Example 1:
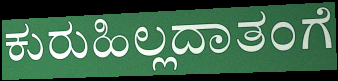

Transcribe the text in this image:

ಕುರುಹಿಲ್ಲದಾತಂಗೆ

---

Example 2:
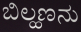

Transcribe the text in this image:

ಬಿಲ್ಹಣನು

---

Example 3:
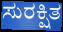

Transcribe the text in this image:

ಸುರಕ್ಷಿತ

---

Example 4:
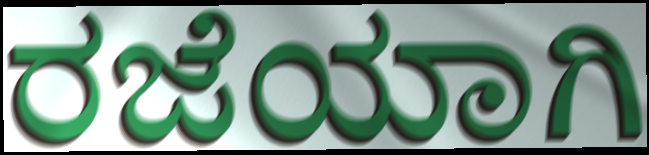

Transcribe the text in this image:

ರಜೆಯಾಗಿ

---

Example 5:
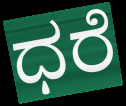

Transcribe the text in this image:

ಧರೆ